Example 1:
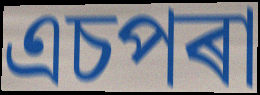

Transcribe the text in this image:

এচপৰা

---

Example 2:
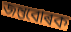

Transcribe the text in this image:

জন্তুবোৰক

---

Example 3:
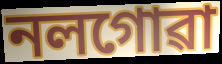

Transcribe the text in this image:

নলগোৱা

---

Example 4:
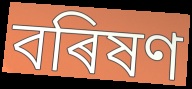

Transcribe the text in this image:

বৰিষণ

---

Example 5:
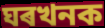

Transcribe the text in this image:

ঘৰখনক